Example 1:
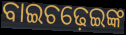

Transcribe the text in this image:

ବାଇଚଢ଼େଇଙ୍କ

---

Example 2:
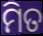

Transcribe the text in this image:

ମିତ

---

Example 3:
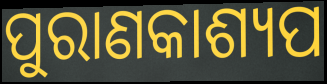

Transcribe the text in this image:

ପୁରାଣକାଶ୍ୟପ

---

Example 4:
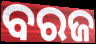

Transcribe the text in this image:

ବରଜ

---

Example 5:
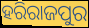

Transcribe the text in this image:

ହରିରାଜପୁର